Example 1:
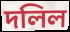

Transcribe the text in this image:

দলিল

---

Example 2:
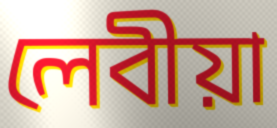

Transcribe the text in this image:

লেবীয়া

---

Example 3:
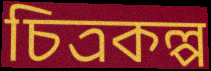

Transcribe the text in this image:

চিত্ৰকল্প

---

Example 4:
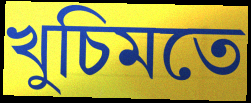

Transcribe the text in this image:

খুচিমতে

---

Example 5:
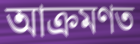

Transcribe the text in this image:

আক্ৰমণত